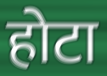
होटा